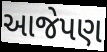
આજેપણ